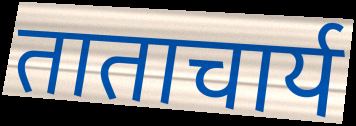
ताताचार्य